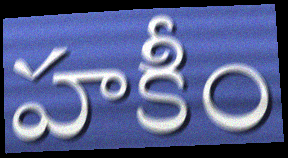
హకీం